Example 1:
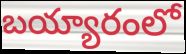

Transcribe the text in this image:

బయ్యారంలో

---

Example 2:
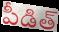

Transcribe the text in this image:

పీడిత్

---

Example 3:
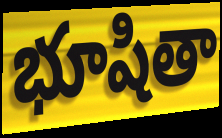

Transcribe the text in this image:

భూషితా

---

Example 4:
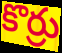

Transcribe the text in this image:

కొర్రు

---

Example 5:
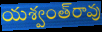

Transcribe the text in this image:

యశ్వంత్‌రావు